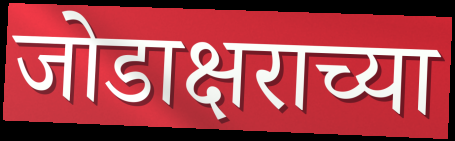
जोडाक्षराच्या